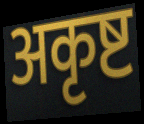
अकृष्ट